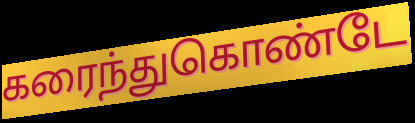
கரைந்துகொண்டே